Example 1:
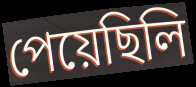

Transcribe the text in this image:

পেয়েছিলি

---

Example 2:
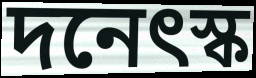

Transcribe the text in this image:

দনেৎস্ক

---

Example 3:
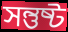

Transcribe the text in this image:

সন্তুষ্ট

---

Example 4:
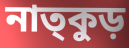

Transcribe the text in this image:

নাত্কুড়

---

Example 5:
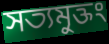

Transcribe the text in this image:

সত্যমুক্তং